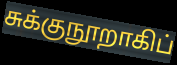
சுக்குநூறாகிப்